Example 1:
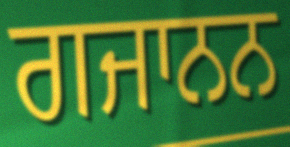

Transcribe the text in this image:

ਗਜਾਨਨ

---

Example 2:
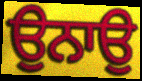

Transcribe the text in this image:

ਉਨਾਉ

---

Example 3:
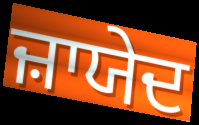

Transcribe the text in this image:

ਜ਼ਾਯੇਦ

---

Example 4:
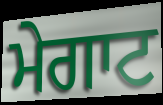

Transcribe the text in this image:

ਮੇਗਾਟ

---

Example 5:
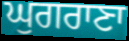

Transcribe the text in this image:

ਘੁਗਰਾਣਾ